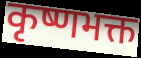
कृष्णभक्त